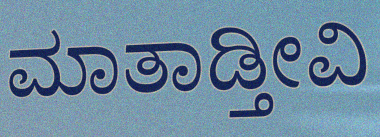
ಮಾತಾಡ್ತೀವಿ